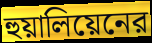
হুয়ালিয়েনের